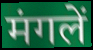
मंगलें